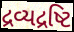
દ્રવ્યદ્રષ્ટિ